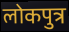
लोकपुत्र